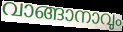
വാങ്ങാനാവും